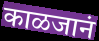
काळजानं